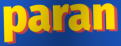
paran